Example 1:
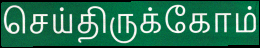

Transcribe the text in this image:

செய்திருக்கோம்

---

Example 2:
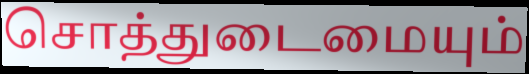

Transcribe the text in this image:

சொத்துடைமையும்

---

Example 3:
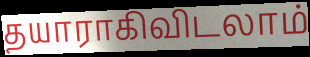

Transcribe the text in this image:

தயாராகிவிடலாம்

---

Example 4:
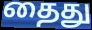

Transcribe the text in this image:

தைது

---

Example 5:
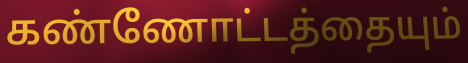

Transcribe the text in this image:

கண்ணோட்டத்தையும்